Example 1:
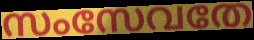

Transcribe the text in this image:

സംസേവതേ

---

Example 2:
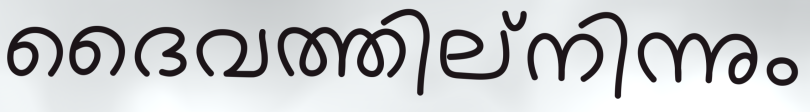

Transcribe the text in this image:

ദൈവത്തില്നിന്നും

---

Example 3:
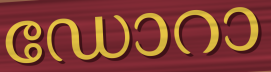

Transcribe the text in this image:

ഡോറാ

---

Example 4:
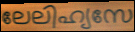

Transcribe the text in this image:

ലേലിഹ്യസേ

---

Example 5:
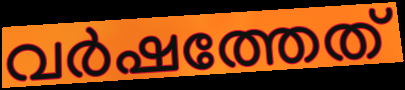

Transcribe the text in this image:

വർഷത്തേത്